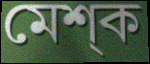
মেশ্ক